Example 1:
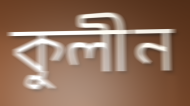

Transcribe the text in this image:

কুলীন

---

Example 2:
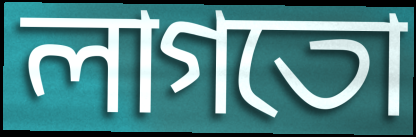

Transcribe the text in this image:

লাগতো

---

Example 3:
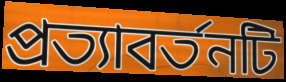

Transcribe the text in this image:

প্রত্যাবর্তনটি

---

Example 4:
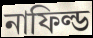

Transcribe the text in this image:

নাফিল্ড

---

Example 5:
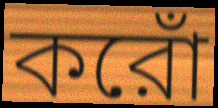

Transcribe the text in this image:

করোঁ